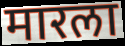
मारला